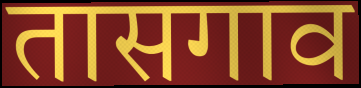
तासगाव